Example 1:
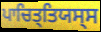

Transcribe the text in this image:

ਪਾਚਿਤ੍ਤਿਯਸ੍ਸ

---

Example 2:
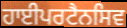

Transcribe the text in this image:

ਹਾਈਪਰਟੈਨਸਿਵ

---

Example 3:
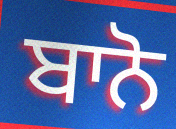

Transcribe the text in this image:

ਬਾਨੋ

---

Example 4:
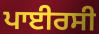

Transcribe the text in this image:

ਪਾਈਰਸੀ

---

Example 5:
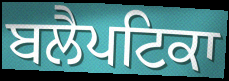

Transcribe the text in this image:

ਬਲੈਪਟਿਕਾ